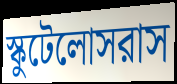
স্কুটেলোসরাস